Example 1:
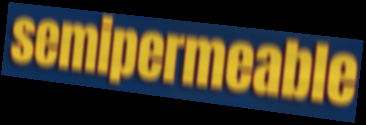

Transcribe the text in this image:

semipermeable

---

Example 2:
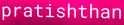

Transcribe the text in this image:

pratishthan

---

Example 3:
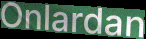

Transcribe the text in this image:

Onlardan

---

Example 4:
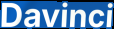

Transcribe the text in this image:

Davinci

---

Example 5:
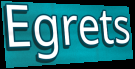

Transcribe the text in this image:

Egrets